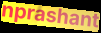
nprashant